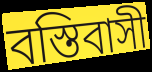
বস্তিবাসী